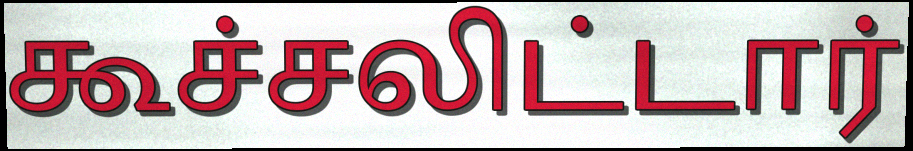
கூச்சலிட்டார்